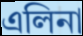
এলিনা